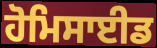
ਹੋਮਿਸਾਈਡ